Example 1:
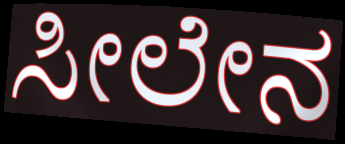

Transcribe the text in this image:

ಸೀಲೇನ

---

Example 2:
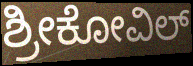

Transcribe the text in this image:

ಶ್ರೀಕೋವಿಲ್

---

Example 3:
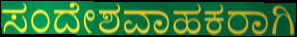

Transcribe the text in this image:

ಸಂದೇಶವಾಹಕರಾಗಿ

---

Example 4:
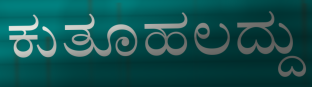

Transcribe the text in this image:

ಕುತೂಹಲದ್ದು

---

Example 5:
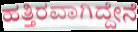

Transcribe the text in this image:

ಹತ್ತಿರವಾಗಿದ್ದೇನೆ